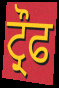
ਟ੍ਰੌਫ